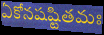
ఏకోనషష్టితమః